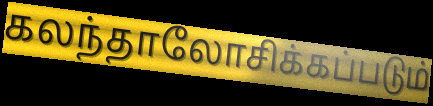
கலந்தாலோசிக்கப்படும்